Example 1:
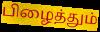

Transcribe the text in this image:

பிழைத்தும்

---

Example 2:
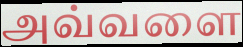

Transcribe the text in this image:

அவ்வளை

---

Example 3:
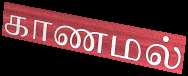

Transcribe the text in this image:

காணமல்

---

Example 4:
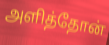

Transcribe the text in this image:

அளித்தோன்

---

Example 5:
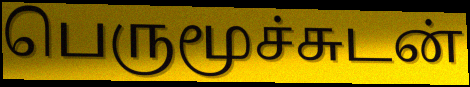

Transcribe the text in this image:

பெருமூச்சுடன்